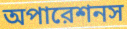
অপারেশনস